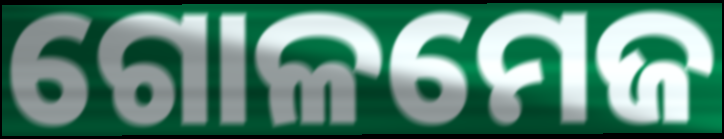
ଗୋଳମେଜ